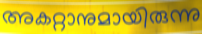
അകറ്റാനുമായിരുന്നു